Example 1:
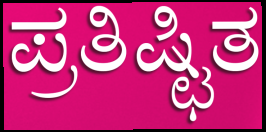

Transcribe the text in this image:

ಪ್ರತಿಷ್ಟಿತ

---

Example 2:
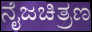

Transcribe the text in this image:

ನೈಜಚಿತ್ರಣ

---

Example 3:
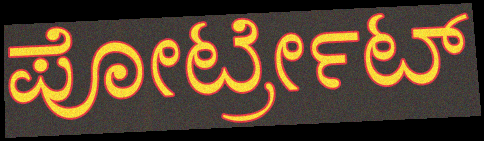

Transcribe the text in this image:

ಪೋರ್ಟ್ರೇಟ್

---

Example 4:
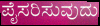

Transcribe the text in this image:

ಪೈಸರಿಸುವುದು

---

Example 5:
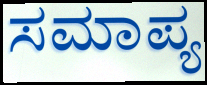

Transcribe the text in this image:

ಸಮಾಪ್ಯ